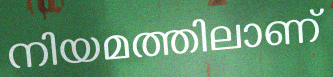
നിയമത്തിലാണ്